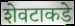
शेवटाकडे